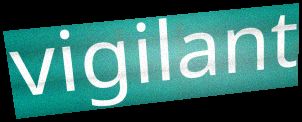
vigilant